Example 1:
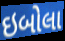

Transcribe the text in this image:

ઇબોલા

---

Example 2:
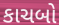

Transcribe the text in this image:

કાચબો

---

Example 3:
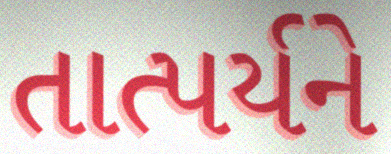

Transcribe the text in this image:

તાત્પર્યને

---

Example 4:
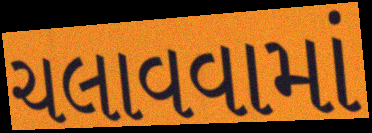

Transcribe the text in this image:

ચલાવવામાં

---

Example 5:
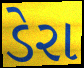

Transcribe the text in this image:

ડેરા